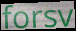
forsv